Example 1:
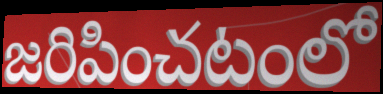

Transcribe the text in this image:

జరిపించటంలో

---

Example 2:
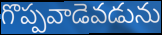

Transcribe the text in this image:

గొప్పవాడెవడును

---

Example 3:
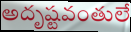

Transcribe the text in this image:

అదృష్టవంతులే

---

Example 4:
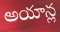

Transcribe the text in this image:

అయాన్ల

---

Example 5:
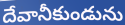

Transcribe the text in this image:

దేవానీకుండును